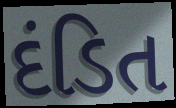
દંડિત